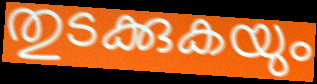
തുടക്കുകയും